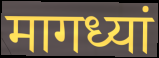
मागध्यां